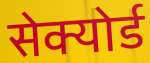
सेक्योर्ड